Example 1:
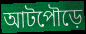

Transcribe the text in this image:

আটপৌড়ে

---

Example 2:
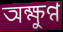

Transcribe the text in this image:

অক্ষুণ্ণ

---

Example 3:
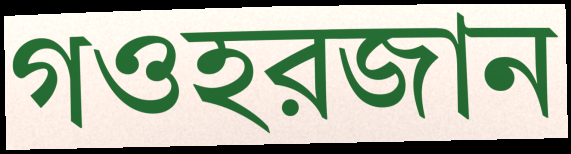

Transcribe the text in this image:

গওহরজান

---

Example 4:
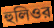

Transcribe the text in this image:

হুলিওর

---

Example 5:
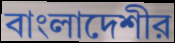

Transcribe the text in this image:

বাংলাদেশীর